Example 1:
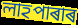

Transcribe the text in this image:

লাহপাৰাৰ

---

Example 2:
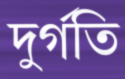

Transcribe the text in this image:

দুৰ্গতি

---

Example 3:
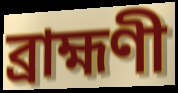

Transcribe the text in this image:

ব্ৰাহ্মণী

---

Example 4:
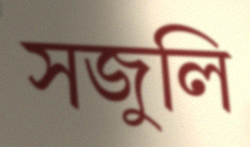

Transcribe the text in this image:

সজুলি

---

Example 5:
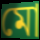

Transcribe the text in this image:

মো